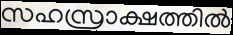
സഹസ്രാക്ഷത്തിൽ